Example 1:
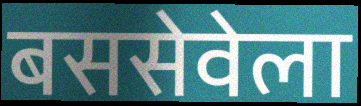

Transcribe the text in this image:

बससेवेला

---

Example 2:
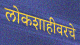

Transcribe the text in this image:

लोकशाहीवरचे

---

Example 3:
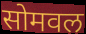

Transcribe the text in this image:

सोमवल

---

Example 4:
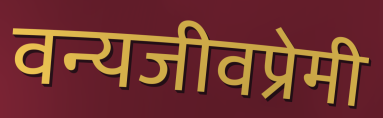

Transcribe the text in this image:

वन्यजीवप्रेमी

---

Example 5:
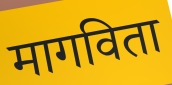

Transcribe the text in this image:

मागविता